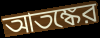
আতঙ্কের